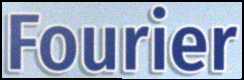
Fourier